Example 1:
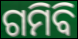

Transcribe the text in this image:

ଗମିବି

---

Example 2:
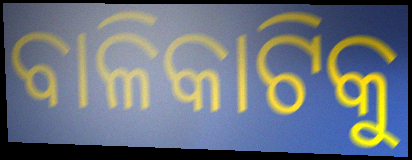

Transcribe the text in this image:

ବାଳିକାଟିକୁ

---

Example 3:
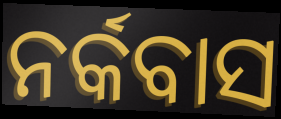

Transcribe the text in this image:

ନର୍କବାସ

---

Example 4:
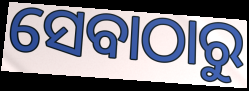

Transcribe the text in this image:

ସେବାଠାରୁ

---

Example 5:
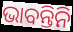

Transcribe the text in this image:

ଭାବନ୍ତିନି